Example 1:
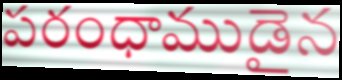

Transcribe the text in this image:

పరంధాముడైన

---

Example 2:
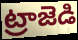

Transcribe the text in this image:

ట్రాజెడి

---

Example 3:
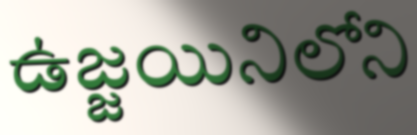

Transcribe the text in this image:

ఉజ్జయినిలోని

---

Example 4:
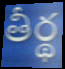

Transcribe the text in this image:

తీర్థ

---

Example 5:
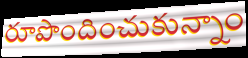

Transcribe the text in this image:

రూపొందించుకున్నాం